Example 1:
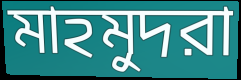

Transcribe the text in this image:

মাহমুদরা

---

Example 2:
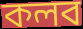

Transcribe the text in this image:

কলব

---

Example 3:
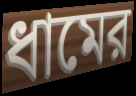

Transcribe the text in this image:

ধামের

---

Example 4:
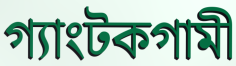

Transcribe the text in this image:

গ্যাংটকগামী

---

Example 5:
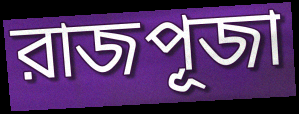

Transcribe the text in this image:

রাজপূজা